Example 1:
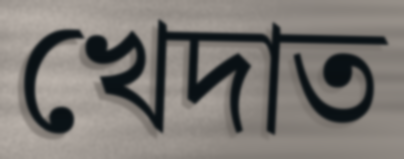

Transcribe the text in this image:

খেদাত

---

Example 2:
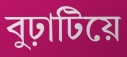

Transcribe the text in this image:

বুঢ়াটিয়ে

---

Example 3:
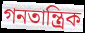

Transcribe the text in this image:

গনতান্ত্ৰিক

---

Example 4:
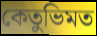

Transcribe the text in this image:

কেতুভিমত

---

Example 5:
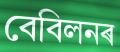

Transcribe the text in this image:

বেবিলনৰ